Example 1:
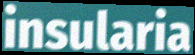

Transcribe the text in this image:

insularia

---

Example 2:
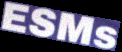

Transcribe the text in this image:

ESMs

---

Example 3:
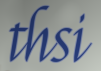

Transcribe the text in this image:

thsi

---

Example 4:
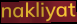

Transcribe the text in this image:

nakliyat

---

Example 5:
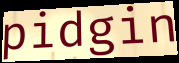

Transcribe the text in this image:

pidgin